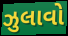
ઝુલાવો